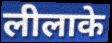
लीलाके